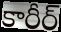
కారీర్